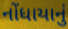
નોંધાયાનું